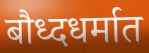
बौध्दधर्मात